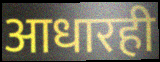
आधारही